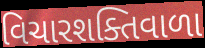
વિચારશક્તિવાળા